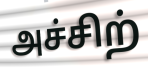
அச்சிற்